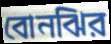
বোনঝির